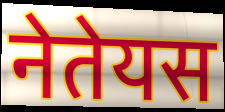
नेतेयस